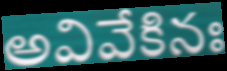
అవివేకినః